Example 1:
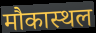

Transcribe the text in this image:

मौकास्थल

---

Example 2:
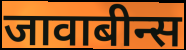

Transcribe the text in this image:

जावाबीन्स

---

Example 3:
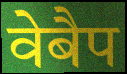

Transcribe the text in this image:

वेबैप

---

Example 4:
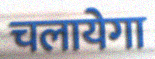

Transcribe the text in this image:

चलायेगा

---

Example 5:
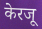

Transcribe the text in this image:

केरजू